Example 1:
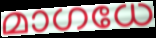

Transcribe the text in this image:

മാഗധേ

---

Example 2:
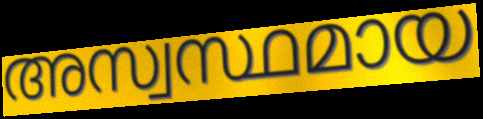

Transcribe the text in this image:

അസ്വസ്ഥമായ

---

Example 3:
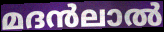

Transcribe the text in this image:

മദൻലാൽ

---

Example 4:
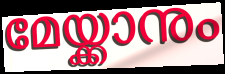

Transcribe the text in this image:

മേയ്ക്കാനും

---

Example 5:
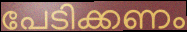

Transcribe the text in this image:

പേടിക്കണം